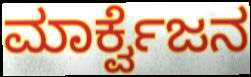
ಮಾರ್ಕ್ವೆಜನ